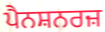
ਪੈਨਸ਼ਨਰਜ਼